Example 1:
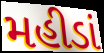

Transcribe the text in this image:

મહીડાં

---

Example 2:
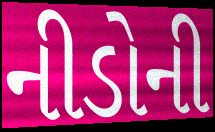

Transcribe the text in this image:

નીડોની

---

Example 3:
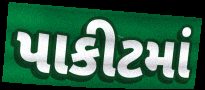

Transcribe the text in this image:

પાકીટમાં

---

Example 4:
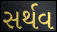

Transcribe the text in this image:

સર્થવ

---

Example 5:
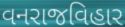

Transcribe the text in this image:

વનરાજવિહાર